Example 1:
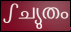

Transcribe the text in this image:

ഽച്യുതം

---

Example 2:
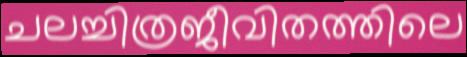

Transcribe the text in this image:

ചലച്ചിത്രജീവിതത്തിലെ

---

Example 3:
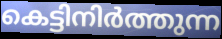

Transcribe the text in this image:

കെട്ടിനിർത്തുന്ന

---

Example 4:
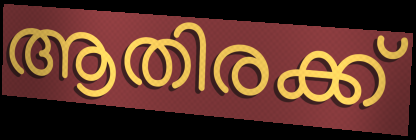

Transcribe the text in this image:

ആതിരക്ക്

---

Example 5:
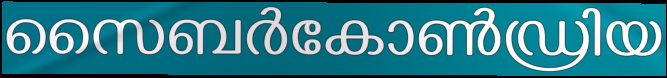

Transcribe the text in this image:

സൈബർകോൺഡ്രിയ